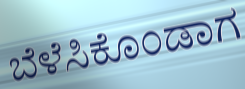
ಬೆಳೆಸಿಕೊಂಡಾಗ